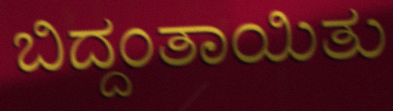
ಬಿದ್ದಂತಾಯಿತು